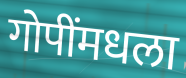
गोपींमधला